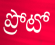
ప్రోటో